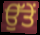
ਉੱਤੇਂ